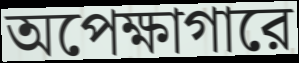
অপেক্ষাগারে